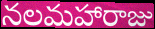
నలమహారాజు